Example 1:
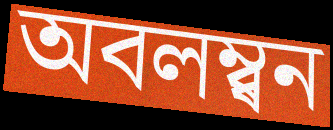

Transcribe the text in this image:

অবলম্ব্বন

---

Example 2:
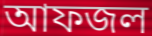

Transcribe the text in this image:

আফজল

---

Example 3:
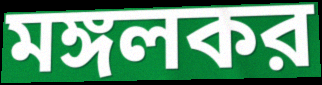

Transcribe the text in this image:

মঙ্গলকর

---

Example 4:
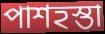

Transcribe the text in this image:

পাশহস্তা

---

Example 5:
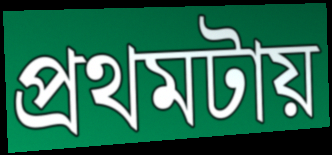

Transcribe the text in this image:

প্রথমটায়